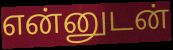
என்னுடன்